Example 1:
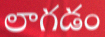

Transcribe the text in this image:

లాగడం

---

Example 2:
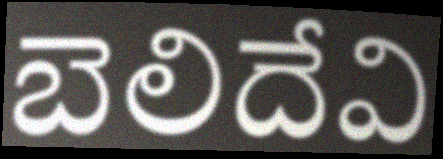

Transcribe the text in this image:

బెలిదేవి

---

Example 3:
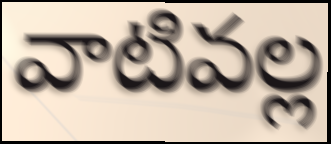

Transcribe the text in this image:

వాటివల్ల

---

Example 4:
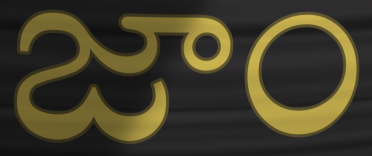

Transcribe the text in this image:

జాం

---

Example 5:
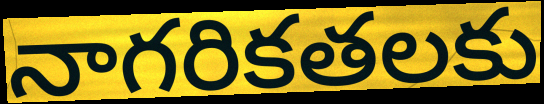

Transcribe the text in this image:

నాగరికతలకు